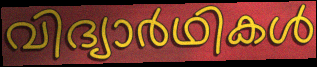
വിദ്യാർഥികൾ